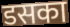
डसका